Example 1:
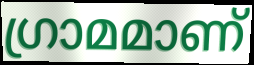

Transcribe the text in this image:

ഗ്രാമമാണ്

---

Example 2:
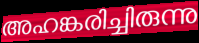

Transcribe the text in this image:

അഹങ്കരിച്ചിരുന്നു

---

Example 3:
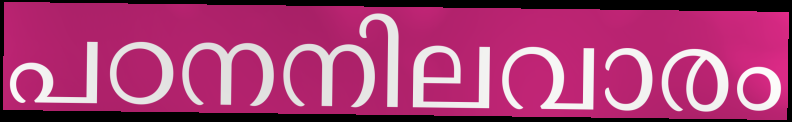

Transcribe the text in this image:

പഠനനിലവാരം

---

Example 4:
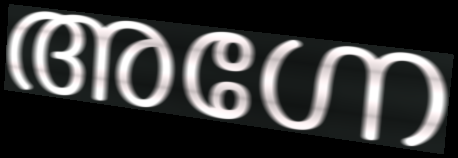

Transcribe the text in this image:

അഗ്നേ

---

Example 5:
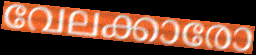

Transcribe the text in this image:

വേലക്കാരോ